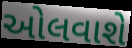
ઓલવાશે